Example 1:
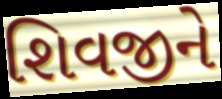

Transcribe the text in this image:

શિવજીને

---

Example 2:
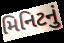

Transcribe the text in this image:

મિનિટનું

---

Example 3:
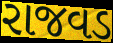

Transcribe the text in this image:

રાજવડ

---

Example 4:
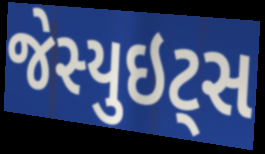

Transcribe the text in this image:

જેસ્યુઇટ્સ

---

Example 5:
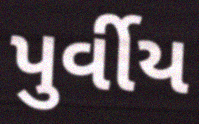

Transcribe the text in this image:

પુર્વીય